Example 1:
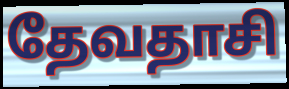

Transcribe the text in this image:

தேவதாசி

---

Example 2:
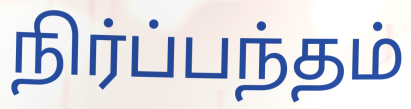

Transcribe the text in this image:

நிர்ப்பந்தம்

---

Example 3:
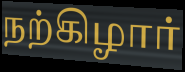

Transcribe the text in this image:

நற்கிழார்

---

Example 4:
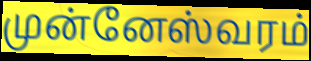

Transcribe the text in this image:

முன்னேஸ்வரம்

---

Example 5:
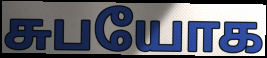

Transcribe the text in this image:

சுபயோக